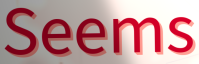
Seems